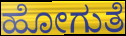
ಹೋಗುತೆ